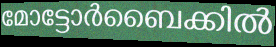
മോട്ടോർബൈക്കിൽ